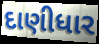
દાણીધાર